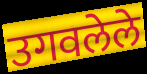
उगवलेले